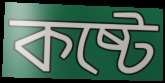
কষ্টে